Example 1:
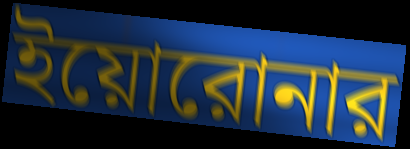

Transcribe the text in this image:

ইয়োরোনার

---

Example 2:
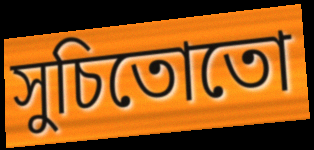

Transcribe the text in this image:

সুচিতোতো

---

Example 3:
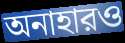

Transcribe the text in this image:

অনাহারও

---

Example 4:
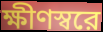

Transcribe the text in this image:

ক্ষীণস্বরে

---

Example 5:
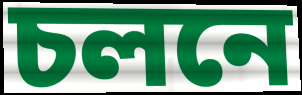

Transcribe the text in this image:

চলনে